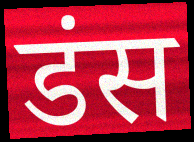
डंस